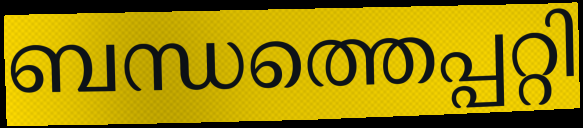
ബന്ധത്തെപ്പറ്റി